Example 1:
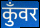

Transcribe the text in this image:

कुँवर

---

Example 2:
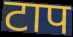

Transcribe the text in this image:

टाप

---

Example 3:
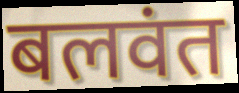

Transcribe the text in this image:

बलवंत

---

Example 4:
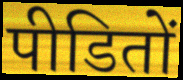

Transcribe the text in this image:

पीडितों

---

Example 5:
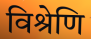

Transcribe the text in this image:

विश्रेणि